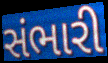
સંભારી